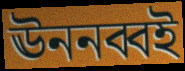
ঊননব্বই